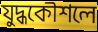
যুদ্ধকৌশলে